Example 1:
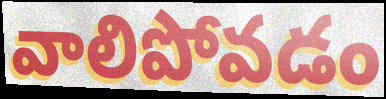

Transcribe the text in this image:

వాలిపోవడం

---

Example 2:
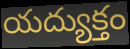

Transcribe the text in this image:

యద్యుక్తం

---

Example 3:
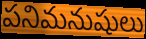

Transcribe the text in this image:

పనిమనుషులు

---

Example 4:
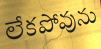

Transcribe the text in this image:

లేకపోవును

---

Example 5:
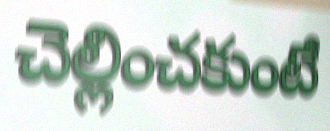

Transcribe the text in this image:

చెల్లించకుంటే